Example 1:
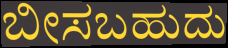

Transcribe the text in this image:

ಬೀಸಬಹುದು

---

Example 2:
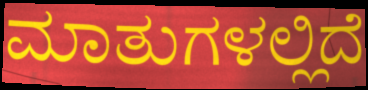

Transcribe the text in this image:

ಮಾತುಗಳಲ್ಲಿದೆ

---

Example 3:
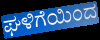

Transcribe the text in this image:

ಘಳಿಗೆಯಿಂದ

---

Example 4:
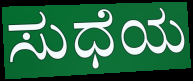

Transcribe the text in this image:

ಸುಧೆಯ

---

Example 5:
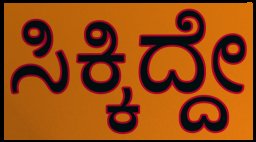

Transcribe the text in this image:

ಸಿಕ್ಕಿದ್ದೇ